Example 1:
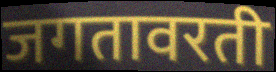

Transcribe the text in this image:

जगतावरती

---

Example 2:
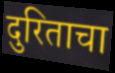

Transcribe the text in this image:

दुरिताचा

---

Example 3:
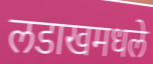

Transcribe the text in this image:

लडाखमधले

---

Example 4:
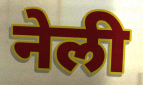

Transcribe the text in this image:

नेली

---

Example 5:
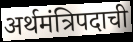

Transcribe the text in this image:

अर्थमंत्रिपदाची